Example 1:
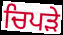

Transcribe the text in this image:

ਚਿਪੜੇ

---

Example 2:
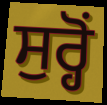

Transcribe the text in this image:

ਸੁਰ੍ਹੋਂ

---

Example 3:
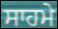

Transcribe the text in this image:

ਸਾਹਮੇ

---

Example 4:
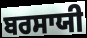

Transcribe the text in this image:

ਬਰਸਾਯੀ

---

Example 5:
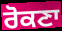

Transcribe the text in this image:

ਰੋਕਣਾ